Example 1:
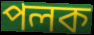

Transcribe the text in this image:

পলক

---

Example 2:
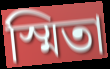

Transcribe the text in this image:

স্মিতা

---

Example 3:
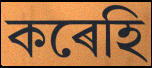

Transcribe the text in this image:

কৰেহি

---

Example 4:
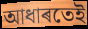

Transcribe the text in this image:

আধাৰতেই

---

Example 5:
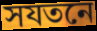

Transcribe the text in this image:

সযতনে